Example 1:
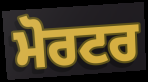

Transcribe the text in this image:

ਮੋਰਟਰ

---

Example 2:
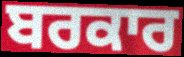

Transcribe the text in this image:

ਬਰਕਾਰ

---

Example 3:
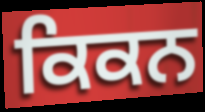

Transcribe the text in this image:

ਕਿਕਨ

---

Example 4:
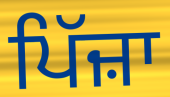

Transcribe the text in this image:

ਪਿੱਜ਼ਾ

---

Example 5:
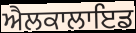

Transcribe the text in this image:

ਐਲਕਾਲਾਇਡ